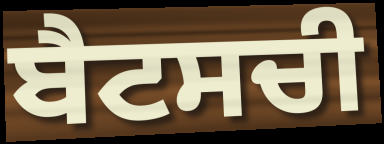
ਬੈਟਸਚੀ